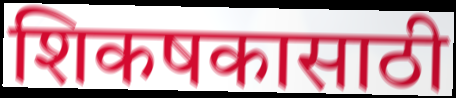
शिकषकासाठी